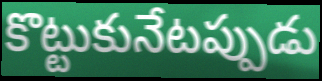
కొట్టుకునేటప్పుడు